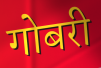
गोबरी